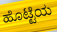
ಹೊಟ್ಟೆಯ